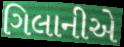
ગિલાનીએ